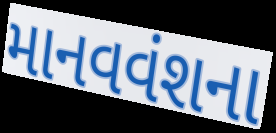
માનવવંશના